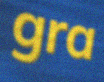
gra